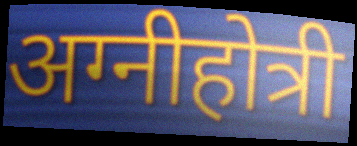
अग्नीहोत्री